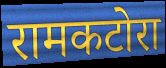
रामकटोरा